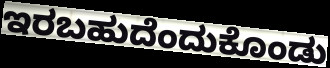
ಇರಬಹುದೆಂದುಕೊಂಡು